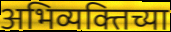
अभिव्यक्तिच्या